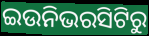
ଇଉନିଭରସିଟିରୁ